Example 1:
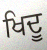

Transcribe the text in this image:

ਖਿਦੂ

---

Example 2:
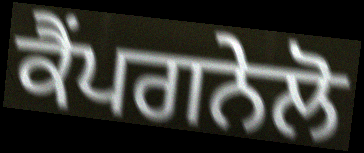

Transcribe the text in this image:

ਕੈਂਪਗਨੇਲੋ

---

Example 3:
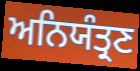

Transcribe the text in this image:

ਅਨਿਯੰਤ੍ਰਣ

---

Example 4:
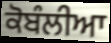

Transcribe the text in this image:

ਕੋਬੰਲੀਆ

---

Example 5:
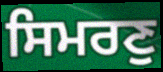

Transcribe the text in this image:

ਸਿਮਰਣੁ